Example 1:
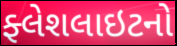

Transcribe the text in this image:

ફ્લેશલાઇટનો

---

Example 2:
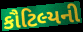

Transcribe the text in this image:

કૌટિલ્યની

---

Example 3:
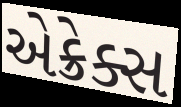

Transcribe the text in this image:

એક્રેક્સ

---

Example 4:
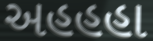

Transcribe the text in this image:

અહહહા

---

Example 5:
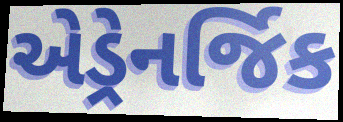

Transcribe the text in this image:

એડ્રેનર્જિક